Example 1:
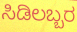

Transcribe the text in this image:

ಸಿಡಿಲಬ್ಬರ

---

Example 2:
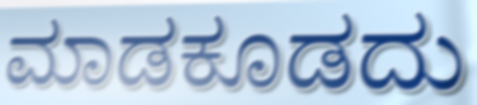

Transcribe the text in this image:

ಮಾಡಕೂಡದು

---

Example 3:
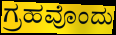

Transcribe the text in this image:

ಗ್ರಹವೊಂದು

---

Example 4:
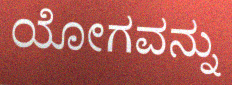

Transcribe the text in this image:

ಯೋಗವನ್ನು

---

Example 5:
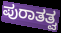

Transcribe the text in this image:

ಪುರಾತತ್ವ